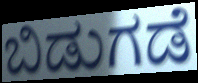
ಬಿಡುಗಡೆ